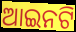
ଆଇନଟି